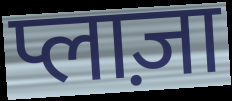
प्लाज़ा